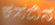
ಕಸಬಿನ